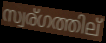
സ്വര്ഗത്തില്